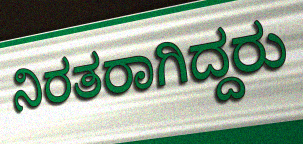
ನಿರತರಾಗಿದ್ದರು